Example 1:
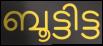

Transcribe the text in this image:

ബൂട്ടിട്ട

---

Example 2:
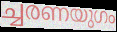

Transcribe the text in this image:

ച്ചരണയുഗം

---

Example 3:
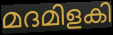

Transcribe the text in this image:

മദമിളകി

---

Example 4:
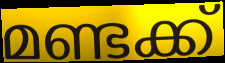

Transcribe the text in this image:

മണ്ടക്ക്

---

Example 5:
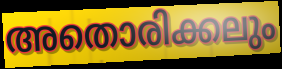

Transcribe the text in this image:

അതൊരിക്കലും